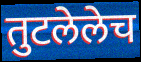
तुटलेलेच